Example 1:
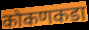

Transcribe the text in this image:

कोकणकडा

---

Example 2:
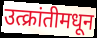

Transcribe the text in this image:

उत्क्रांतीमधून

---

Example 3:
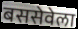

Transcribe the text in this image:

बससेवेला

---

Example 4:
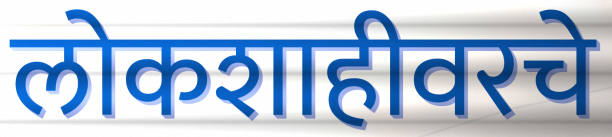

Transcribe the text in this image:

लोकशाहीवरचे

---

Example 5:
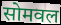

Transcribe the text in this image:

सोमवल